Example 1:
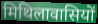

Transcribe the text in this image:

मिथिलावासियों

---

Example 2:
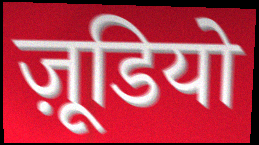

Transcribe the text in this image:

ज़ूडियो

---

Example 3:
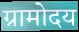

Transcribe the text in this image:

ग्रामोदय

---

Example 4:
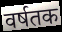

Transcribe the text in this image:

वर्षतक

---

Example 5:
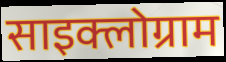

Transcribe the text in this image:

साइक्लोग्राम